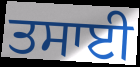
ਤਸਾਈ